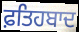
ਫ਼ਤਿਹਬਾਦ